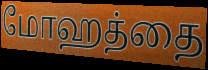
மோஹத்தை